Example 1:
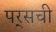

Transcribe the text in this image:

पर्सची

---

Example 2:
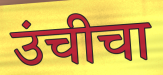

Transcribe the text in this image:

उंचीचा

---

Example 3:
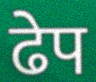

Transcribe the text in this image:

ढेप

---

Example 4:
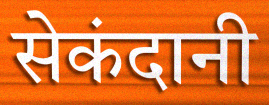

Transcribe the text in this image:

सेकंदानी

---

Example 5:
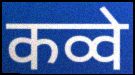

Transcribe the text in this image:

कव्वे